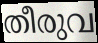
തീരുവ